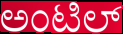
ಅಂಟಿಲ್